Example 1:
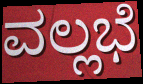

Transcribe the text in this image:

ವಲ್ಲಭೆ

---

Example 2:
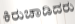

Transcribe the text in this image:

ಕಿರುಚಾಡಿದರು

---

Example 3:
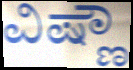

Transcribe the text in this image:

ವಿಷ್ಣೌ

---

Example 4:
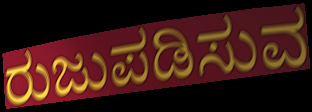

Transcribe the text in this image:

ರುಜುಪಡಿಸುವ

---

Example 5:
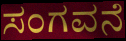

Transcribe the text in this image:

ಸಂಗವನೆ